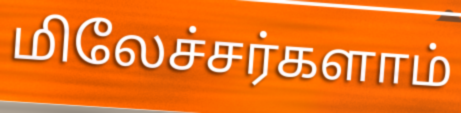
மிலேச்சர்களாம்